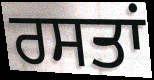
ਰਸਤਾਂ